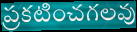
ప్రకటించగలవు